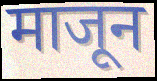
माजून